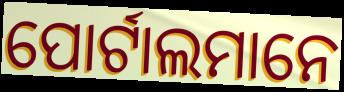
ପୋର୍ଟାଲମାନେ